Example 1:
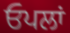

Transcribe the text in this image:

ਓਪਲਾਂ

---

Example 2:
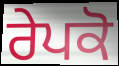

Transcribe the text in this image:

ਰੇਪਕੋ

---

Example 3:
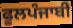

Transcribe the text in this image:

ਫੂਲਪੰਜਾਬੀ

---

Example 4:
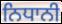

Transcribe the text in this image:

ਨਿਧਾਨੀ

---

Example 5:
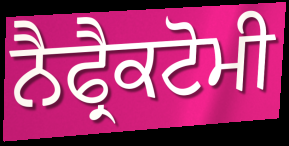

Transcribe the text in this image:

ਨੈਫ੍ਰੈਕਟੋਮੀ